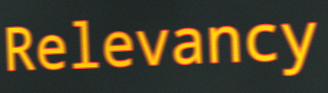
Relevancy